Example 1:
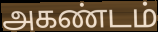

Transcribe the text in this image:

அகண்டம்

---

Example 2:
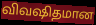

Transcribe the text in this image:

விவஷிதமான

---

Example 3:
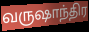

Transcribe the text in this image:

வருஷாந்திர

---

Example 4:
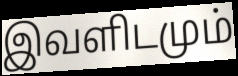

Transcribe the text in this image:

இவளிடமும்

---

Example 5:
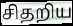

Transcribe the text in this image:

சிதறிய